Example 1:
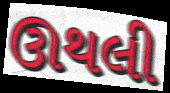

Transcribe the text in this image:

ઊથલી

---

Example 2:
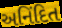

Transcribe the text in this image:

અનિંદિત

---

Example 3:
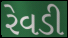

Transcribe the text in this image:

રેવડી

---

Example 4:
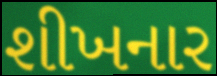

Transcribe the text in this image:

શીખનાર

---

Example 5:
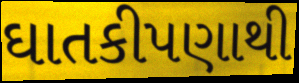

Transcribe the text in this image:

ઘાતકીપણાથી